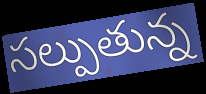
సల్పుతున్న